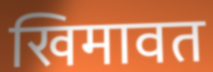
खिमावत